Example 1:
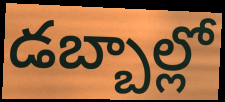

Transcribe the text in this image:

డబ్బాల్లో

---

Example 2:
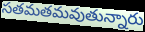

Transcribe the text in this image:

సతమతమవుతున్నారు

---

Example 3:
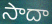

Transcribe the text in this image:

సాదా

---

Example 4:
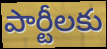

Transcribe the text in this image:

పార్టీలకు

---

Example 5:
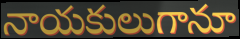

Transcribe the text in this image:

నాయకులుగానూ